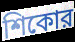
শিকোর